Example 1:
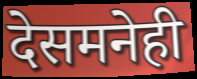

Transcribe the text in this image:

देसमनेही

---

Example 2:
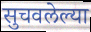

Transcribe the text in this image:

सुचवलेल्या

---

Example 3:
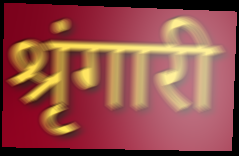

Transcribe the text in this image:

श्रृंगारी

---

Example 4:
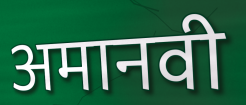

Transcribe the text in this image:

अमानवी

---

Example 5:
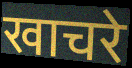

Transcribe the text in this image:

खाचरे